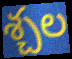
శ్చల